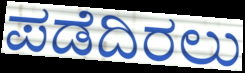
ಪಡೆದಿರಲು